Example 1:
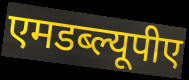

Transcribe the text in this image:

एमडब्ल्यूपीए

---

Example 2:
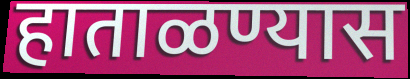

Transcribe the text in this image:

हाताळण्यास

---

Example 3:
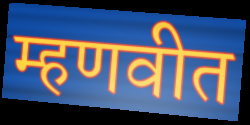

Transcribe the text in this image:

म्हणवीत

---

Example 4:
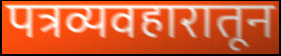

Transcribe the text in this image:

पत्रव्यवहारातून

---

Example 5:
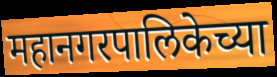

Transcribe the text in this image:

महानगरपालिकेच्या